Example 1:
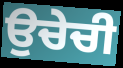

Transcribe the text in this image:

ਉਚੇਚੀ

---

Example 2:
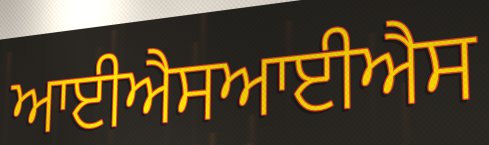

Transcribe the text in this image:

ਆਈਐਸਆਈਐਸ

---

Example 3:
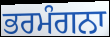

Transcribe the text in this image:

ਭਰਮੰਗਨਾ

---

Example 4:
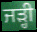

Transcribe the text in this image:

ਜੜ੍ਹੀ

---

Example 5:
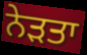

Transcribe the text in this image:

ਨੇੜਤਾ